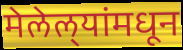
मेलेल्यांमधून